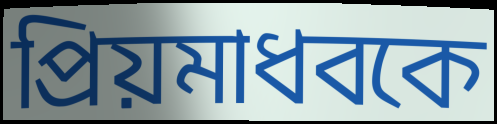
প্রিয়মাধবকে